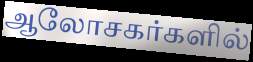
ஆலோசகர்களில்